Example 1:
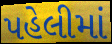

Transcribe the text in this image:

પહેલીમાં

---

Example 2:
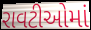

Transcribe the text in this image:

રાવટીઓમાં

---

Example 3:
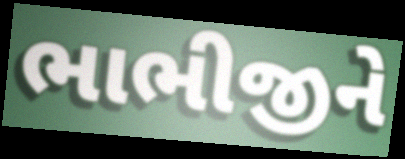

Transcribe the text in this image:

ભાભીજીને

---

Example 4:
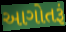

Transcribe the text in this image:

આગોતરૂં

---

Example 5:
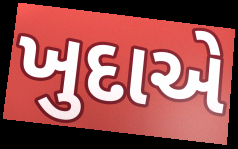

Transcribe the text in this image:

ખુદાએ